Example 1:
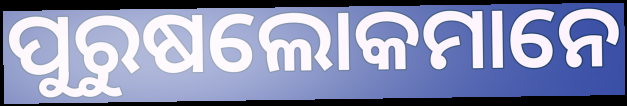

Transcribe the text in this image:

ପୁରୁଷଲୋକମାନେ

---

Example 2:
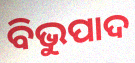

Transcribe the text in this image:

ବିଭୁପାଦ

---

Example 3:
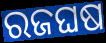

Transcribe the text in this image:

ରଜଘଷ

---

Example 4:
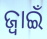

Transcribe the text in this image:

ଜ୍ଵାଇଁ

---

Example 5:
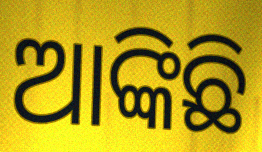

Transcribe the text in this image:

ଆଙ୍କିଛି